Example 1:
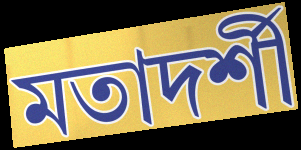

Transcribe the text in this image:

মতাদর্শী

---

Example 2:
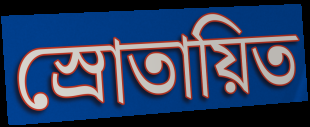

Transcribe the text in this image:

স্রোতায়িত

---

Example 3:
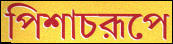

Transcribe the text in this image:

পিশাচরূপে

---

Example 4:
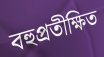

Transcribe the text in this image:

বহুপ্রতীক্ষিত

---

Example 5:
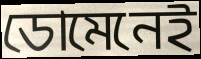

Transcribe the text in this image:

ডোমেনেই